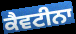
ਕੈਵਟੀਨਾ